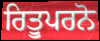
ਰਿਤੂਪਰਨੋ